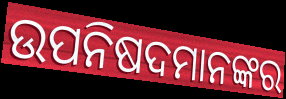
ଉପନିଷଦମାନଙ୍କର